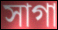
সাগা